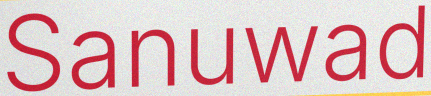
Sanuwad